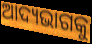
ଆଦ୍ୟଭାଗକୁ